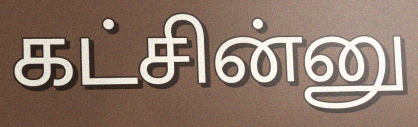
கட்சின்னு